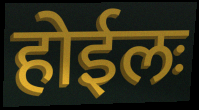
होईलः